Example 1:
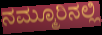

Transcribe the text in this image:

ನಮ್ಮೂರಿನಲ್ಲಿ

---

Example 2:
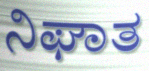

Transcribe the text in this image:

ನಿಘಾತ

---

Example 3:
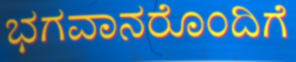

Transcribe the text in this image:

ಭಗವಾನರೊಂದಿಗೆ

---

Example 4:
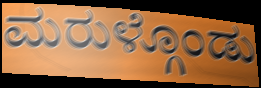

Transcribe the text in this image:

ಮರುಳ್ಗೊಂಡು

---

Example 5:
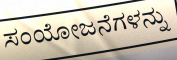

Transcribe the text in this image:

ಸಂಯೋಜನೆಗಳನ್ನು